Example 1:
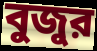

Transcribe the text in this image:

বুজুর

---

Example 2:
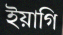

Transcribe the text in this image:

ইয়াগি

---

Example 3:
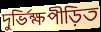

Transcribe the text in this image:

দুর্ভিক্ষপীড়িত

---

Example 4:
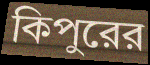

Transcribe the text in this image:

কিপুরের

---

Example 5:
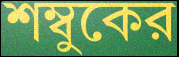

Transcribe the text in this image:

শম্বুকের